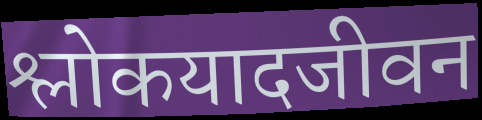
श्लोकयादजीवन